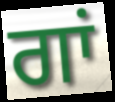
ਗਾਂ